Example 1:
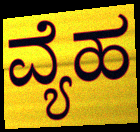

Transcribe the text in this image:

ವ್ಯೆಹ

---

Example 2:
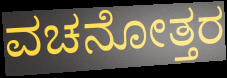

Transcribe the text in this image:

ವಚನೋತ್ತರ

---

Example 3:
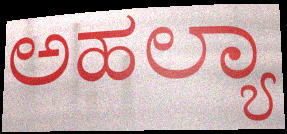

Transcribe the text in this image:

ಅಹಲ್ಯಾ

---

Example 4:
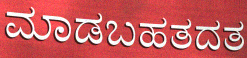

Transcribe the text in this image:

ಮಾಡಬಹತದತ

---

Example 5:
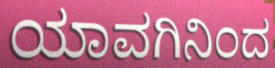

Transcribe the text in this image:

ಯಾವಗಿನಿಂದ